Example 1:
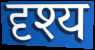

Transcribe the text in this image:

दृश्‍य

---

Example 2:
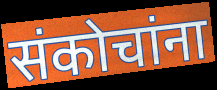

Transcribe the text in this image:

संकोचांना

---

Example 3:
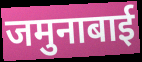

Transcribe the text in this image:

जमुनाबाई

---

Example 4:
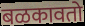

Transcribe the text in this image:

बळकावतो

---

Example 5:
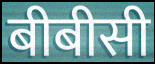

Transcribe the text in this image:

बीबीसी